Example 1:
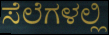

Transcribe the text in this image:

ಸೆಲೆಗಳಲ್ಲಿ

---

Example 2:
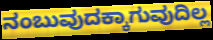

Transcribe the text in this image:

ನಂಬುವುದಕ್ಕಾಗುವುದಿಲ್ಲ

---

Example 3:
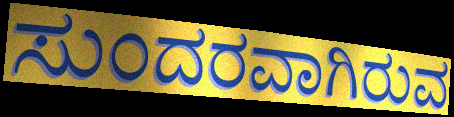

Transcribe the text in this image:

ಸುಂದರವಾಗಿರುವ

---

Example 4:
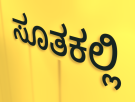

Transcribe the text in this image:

ಸೂತಕಲ್ಲಿ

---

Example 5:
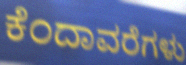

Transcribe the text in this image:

ಕೆಂದಾವರೆಗಳು